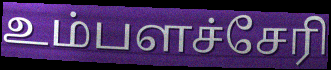
உம்பளச்சேரி